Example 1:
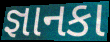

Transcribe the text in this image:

જ્ઞાનકા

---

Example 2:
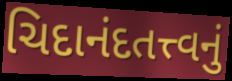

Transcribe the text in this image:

ચિદાનંદતત્ત્વનું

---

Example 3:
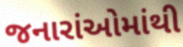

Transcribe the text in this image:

જનારાંઓમાંથી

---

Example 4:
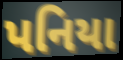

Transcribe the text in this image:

પનિયા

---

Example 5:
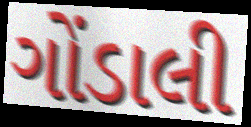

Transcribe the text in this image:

ગોંડાલી